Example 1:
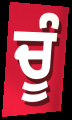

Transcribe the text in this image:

ਚੂੰ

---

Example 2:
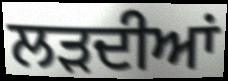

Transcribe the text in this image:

ਲੜਦੀਆਂ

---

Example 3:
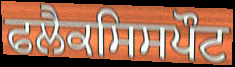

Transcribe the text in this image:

ਫਲੈਕਸਿਸਪੌਟ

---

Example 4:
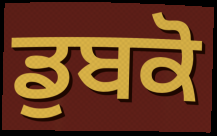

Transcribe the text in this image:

ਡੁਬਕੋ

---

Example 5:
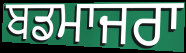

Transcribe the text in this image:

ਬਡਮਾਜਰਾ